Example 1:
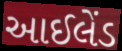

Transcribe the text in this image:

આઈલેંડ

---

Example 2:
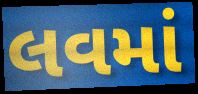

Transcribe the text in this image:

લવમાં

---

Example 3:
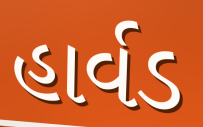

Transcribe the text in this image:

હાર્વડ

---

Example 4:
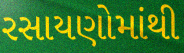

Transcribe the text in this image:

રસાયણોમાંથી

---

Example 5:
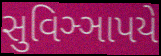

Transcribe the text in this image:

સુવિઞ્ઞાપયે